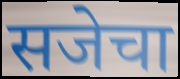
सजेचा